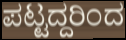
ಪಟ್ಟದ್ದರಿಂದ